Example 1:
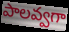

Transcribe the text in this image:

పాలవ్వగా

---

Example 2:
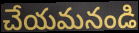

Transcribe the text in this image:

చేయమనండి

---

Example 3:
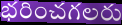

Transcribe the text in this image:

భరించగలరు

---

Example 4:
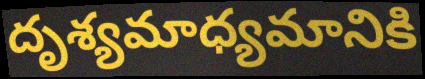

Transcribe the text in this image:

దృశ్యమాధ్యమానికి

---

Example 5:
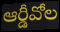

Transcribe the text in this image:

ఆర్డీవోల